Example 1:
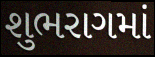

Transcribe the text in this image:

શુભરાગમાં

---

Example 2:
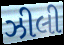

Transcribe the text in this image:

ઝીલી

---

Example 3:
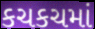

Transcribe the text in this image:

કચકચમાં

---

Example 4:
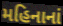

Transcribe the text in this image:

મહિનાનાં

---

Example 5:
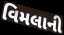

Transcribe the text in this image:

વિમલાની